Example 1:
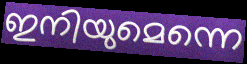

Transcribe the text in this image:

ഇനിയുമെന്നെ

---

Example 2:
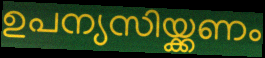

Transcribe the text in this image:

ഉപന്യസിയ്ക്കണം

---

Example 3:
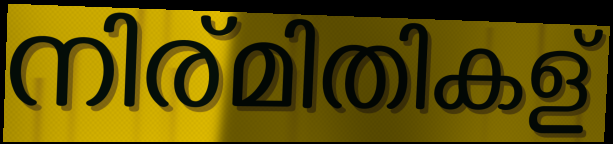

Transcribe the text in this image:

നിര്മിതികള്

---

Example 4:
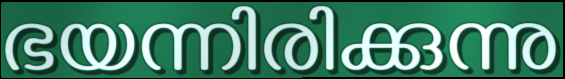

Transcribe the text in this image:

ഭയന്നിരിക്കുന്നു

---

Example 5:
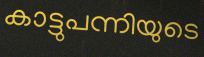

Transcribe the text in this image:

കാട്ടുപന്നിയുടെ